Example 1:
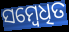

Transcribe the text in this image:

ସମ୍ବେଧିତ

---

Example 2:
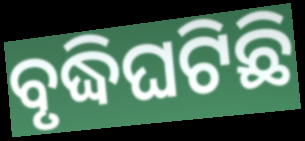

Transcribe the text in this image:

ବୃଦ୍ଧିଘଟିଛି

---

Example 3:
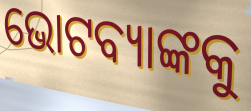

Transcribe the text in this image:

ଭୋଟବ୍ୟାଙ୍କକୁ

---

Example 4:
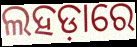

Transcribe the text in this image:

ଲହଡ଼ାରେ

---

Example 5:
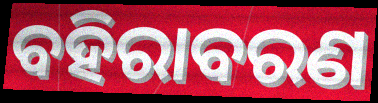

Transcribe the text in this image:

ବହିରାବରଣ